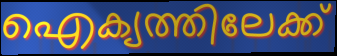
ഐക്യത്തിലേക്ക്